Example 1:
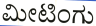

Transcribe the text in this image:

ಮೀಟಿಂಗು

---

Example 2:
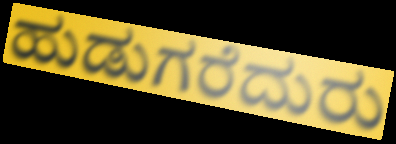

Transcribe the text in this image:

ಹುಡುಗರೆದುರು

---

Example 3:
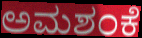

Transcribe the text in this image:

ಅಮಶಂಕೆ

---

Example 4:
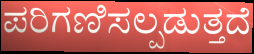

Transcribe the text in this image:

ಪರಿಗಣಿಸಲ್ಪಡುತ್ತದೆ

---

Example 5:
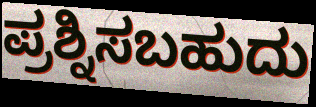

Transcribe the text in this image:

ಪ್ರಶ್ನಿಸಬಹುದು